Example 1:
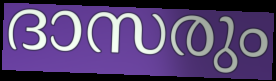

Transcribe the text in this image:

ദാസരും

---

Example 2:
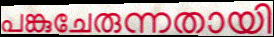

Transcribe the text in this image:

പങ്കുചേരുന്നതായി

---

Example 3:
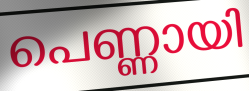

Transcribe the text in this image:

പെണ്ണായി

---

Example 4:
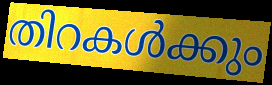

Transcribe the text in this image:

തിറകൾക്കും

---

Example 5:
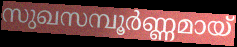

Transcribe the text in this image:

സുഖസമ്പൂർണ്ണമായ്